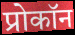
प्रोकॉन